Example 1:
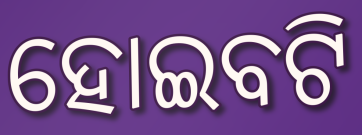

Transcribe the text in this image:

ହୋଇବଟି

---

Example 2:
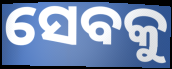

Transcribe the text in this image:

ସେବକୁ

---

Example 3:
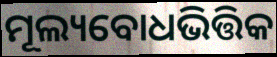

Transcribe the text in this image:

ମୂଲ୍ୟବୋଧଭିତ୍ତିକ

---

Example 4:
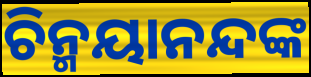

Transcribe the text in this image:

ଚିନ୍ମୟାନନ୍ଦଙ୍କ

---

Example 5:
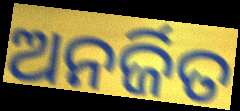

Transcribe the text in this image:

ଅନର୍ଜିତ